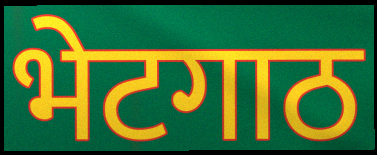
भेटगाठ